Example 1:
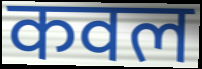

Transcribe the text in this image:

कवल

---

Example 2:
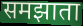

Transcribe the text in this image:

समझाता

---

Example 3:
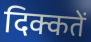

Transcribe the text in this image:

दिक्कतें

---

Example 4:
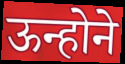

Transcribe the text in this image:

ऊन्होने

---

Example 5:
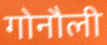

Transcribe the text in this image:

गोनौली